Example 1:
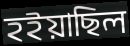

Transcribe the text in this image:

হইয়াছিল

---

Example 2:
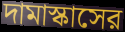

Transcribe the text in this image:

দামাস্কাসের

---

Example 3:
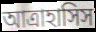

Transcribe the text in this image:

আত্রাহাসিস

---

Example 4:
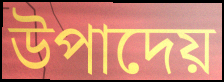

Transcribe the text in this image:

উপাদেয়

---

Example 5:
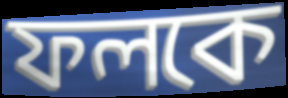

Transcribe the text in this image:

ফলকে